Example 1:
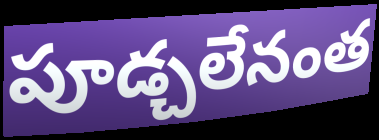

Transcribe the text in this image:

పూడ్చలేనంత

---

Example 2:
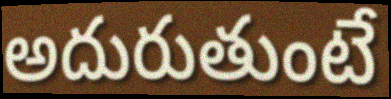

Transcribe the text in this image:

అదురుతుంటే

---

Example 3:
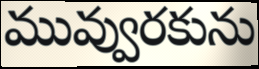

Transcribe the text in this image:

మువ్వురకును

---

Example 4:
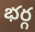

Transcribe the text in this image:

భర్గ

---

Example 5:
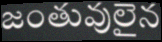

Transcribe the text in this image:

జంతువులైన